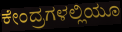
ಕೇಂದ್ರಗಳಲ್ಲಿಯೂ